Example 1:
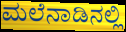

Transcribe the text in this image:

ಮಲೆನಾಡಿನಲ್ಲಿ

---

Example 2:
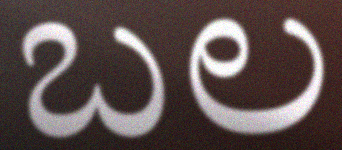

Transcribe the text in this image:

ಬಲ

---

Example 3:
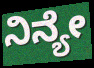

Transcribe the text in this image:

ನಿನ್ಯೇ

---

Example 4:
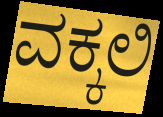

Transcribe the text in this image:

ವಕ್ಕಲಿ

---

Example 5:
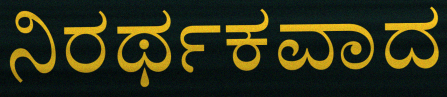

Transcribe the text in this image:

ನಿರರ್ಥಕವಾದ